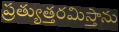
ప్రత్యుత్తరమిస్తాను